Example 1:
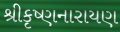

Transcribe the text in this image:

શ્રીકૃષ્ણનારાયણ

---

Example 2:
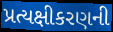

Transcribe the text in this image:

પ્રત્યક્ષીકરણની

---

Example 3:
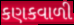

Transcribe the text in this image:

કણકવાળી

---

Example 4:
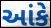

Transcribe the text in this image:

આંકે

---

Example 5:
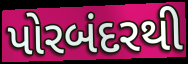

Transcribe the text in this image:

પોરબંદરથી